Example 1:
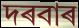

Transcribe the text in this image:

দৰবাৰ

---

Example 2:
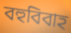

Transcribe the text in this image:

বহুবিবাহ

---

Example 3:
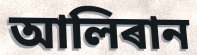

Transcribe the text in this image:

আলিৰান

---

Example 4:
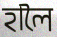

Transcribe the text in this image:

হালৈ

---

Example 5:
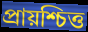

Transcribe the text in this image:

প্ৰায়শ্চিত্ত